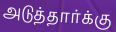
அடுத்தார்க்கு